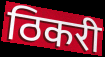
ठिकरी